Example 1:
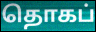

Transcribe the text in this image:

தொகப்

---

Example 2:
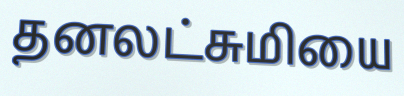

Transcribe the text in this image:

தனலட்சுமியை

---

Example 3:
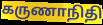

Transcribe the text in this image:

கருணாநிதி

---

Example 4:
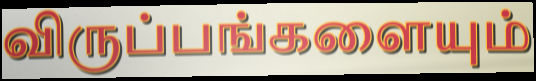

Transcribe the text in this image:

விருப்பங்களையும்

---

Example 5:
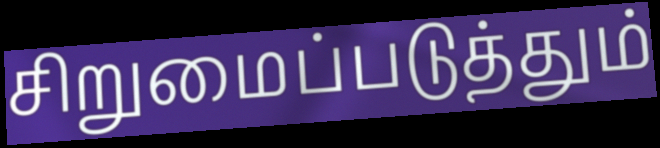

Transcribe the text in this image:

சிறுமைப்படுத்தும்